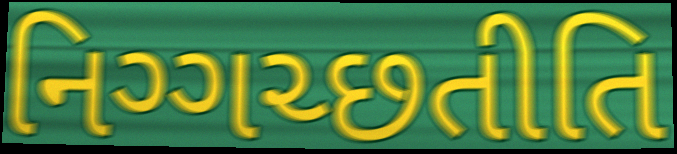
નિગ્ગચ્છતીતિ